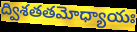
ద్విశతతమోధ్యాయః